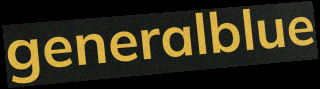
generalblue